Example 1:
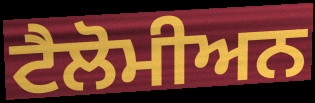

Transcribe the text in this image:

ਟੈਲੋਮੀਅਨ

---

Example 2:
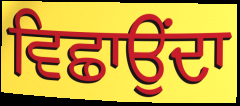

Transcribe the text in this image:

ਵਿਛਾਉਂਦਾ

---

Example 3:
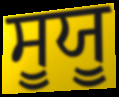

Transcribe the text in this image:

ਸੂਯੂ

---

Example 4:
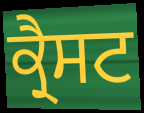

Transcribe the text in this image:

ਕ੍ਰੈਸਟ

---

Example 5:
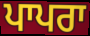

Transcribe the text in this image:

ਪਾਪਰਾ